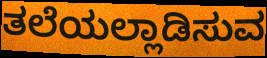
ತಲೆಯಲ್ಲಾಡಿಸುವ